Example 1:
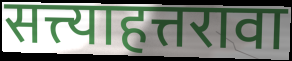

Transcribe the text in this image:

सत्त्याहत्तरावा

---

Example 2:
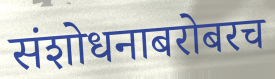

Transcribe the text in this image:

संशोधनाबरोबरच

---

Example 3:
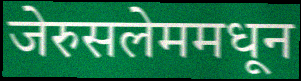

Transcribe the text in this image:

जेरुसलेममधून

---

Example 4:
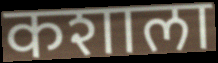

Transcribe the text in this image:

कशाला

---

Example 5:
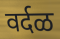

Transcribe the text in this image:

वर्दळ